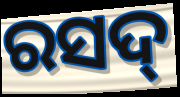
ରସଦ୍